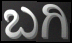
ಬಗಿ